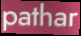
pathar